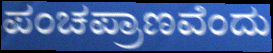
ಪಂಚಪ್ರಾಣವೆಂದು